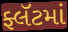
ફ્લૅટમાં